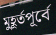
মুহূর্তপূর্বে